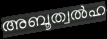
അബൂത്വൽഹ